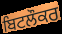
ਬਿਟਲੌਕਰ